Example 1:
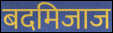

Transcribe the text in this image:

बदमिजाज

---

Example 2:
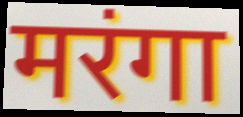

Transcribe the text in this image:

मरंगा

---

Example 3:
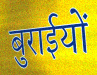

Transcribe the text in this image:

बुराईयों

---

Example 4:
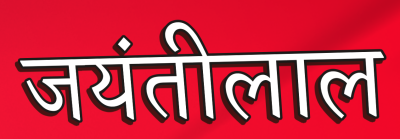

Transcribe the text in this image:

जयंतीलाल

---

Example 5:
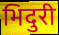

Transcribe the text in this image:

भिदुरी